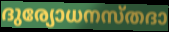
ദുര്യോധനസ്തദാ